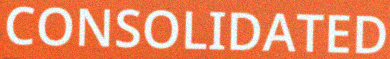
CONSOLIDATED